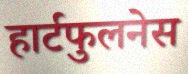
हार्टफुलनेस